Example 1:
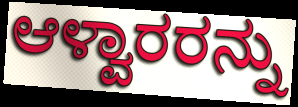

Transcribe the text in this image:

ಆಳ್ವಾರರನ್ನು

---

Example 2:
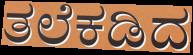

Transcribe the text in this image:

ತಲೆಕಡಿದ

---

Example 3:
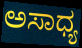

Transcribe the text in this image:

ಅಸಾಧ್ಯ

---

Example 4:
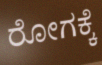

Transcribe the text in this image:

ರೋಗಕ್ಕೆ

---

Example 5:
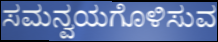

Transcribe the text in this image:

ಸಮನ್ವಯಗೊಳಿಸುವ